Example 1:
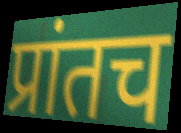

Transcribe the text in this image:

प्रांतच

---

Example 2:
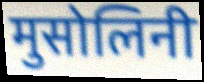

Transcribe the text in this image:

मुसोलिनी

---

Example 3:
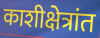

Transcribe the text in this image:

काशीक्षेत्रांत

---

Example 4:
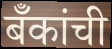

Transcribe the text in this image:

बॅँकांची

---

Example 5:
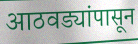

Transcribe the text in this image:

आठवड्यांपासून